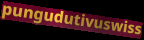
pungudutivuswiss